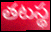
తటస్థ